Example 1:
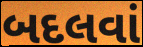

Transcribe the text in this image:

બદલવાં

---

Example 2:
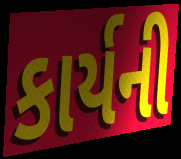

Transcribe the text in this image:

કાર્યની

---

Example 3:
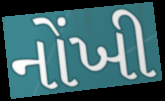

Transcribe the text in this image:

નોંખી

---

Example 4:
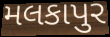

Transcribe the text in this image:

મલકાપુર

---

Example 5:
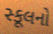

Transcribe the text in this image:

સ્કૂલનો